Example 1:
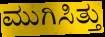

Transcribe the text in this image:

ಮುಗಿಸಿತ್ತು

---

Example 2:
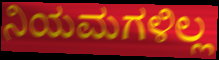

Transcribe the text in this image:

ನಿಯಮಗಳಿಲ್ಲ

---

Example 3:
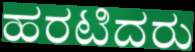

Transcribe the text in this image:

ಹರಟಿದರು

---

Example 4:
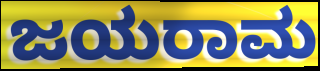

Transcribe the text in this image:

ಜಯರಾಮ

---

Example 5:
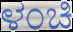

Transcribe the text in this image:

ಳಂಚಿ